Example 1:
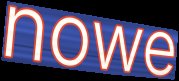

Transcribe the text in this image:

nowe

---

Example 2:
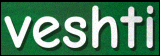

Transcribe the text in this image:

veshti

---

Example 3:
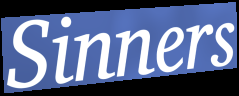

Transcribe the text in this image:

Sinners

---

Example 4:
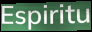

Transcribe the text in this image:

Espiritu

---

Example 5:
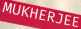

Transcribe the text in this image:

MUKHERJEE